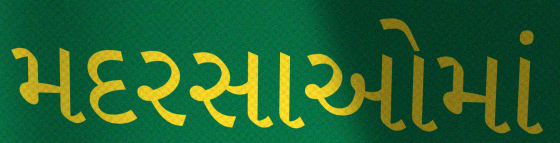
મદરસાઓમાં